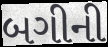
બગીની